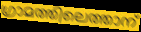
ഗ്രാമത്തിലെത്താന്